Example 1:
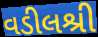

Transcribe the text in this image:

વડીલશ્રી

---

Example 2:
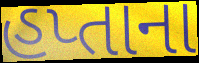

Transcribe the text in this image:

હપ્તાના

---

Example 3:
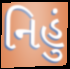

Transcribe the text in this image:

નિહું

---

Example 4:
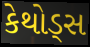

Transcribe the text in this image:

કેથોડ્સ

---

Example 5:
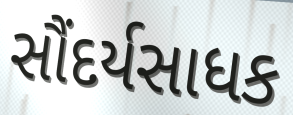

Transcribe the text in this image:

સૌંદર્યસાધક